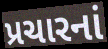
પ્રચારનાં